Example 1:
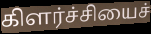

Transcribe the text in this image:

கிளர்ச்சியைச்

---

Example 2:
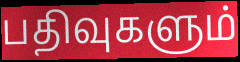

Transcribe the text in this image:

பதிவுகளும்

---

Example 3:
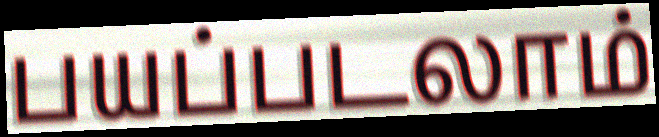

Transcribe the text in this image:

பயப்படலாம்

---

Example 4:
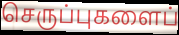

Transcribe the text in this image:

செருப்புகளைப்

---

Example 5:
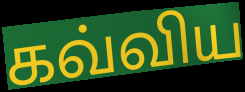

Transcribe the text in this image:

கவ்விய